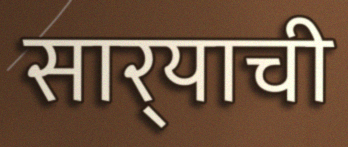
सार्‍याची